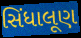
સિંધાલૂણ